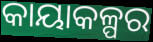
କାୟାକଳ୍ପର